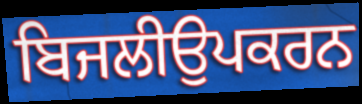
ਬਿਜਲੀਉਪਕਰਨ